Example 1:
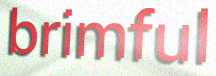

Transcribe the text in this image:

brimful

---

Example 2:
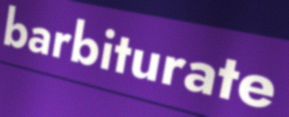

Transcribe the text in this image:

barbiturate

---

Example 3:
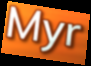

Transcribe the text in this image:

Myr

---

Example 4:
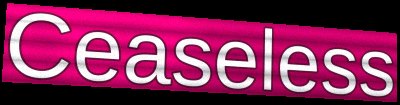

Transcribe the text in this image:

Ceaseless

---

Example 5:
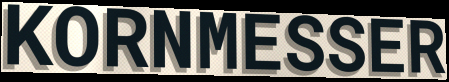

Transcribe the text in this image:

KORNMESSER